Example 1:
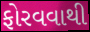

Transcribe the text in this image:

ફોરવવાથી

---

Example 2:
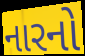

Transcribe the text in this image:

નારનો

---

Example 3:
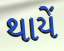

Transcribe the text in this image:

થાયેં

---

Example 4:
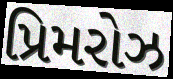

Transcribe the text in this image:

પ્રિમરોઝ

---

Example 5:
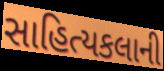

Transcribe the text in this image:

સાહિત્યકલાની